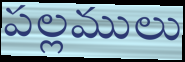
పల్లములు